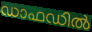
ഡാഫഡിൽ